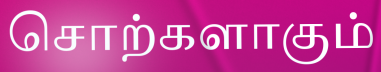
சொற்களாகும்